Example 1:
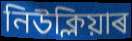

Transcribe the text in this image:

নিউক্লিয়াৰ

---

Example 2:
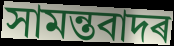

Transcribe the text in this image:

সামন্তবাদৰ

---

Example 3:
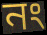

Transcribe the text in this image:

নং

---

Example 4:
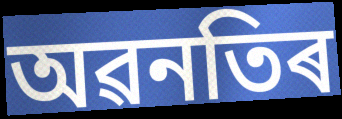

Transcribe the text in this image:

অৱনতিৰ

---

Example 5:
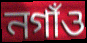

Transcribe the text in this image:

নগাঁও